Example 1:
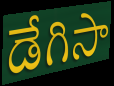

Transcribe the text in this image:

డేగిసా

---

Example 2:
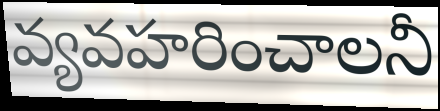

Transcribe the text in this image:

వ్యవహరించాలనీ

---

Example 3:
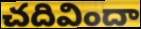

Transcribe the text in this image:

చదివిందా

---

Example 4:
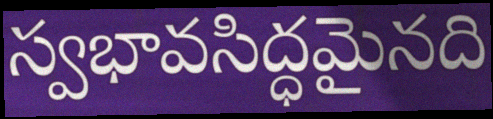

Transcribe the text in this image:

స్వభావసిద్ధమైనది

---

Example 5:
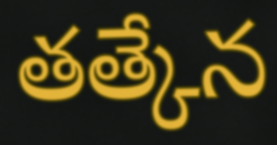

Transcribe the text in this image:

తత్కేన